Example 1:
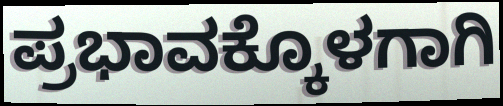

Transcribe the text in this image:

ಪ್ರಭಾವಕ್ಕೊಳಗಾಗಿ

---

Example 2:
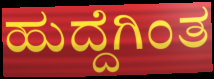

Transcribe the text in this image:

ಹುದ್ದೆಗಿಂತ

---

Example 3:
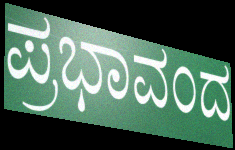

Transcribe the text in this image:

ಪ್ರಭಾವಂದ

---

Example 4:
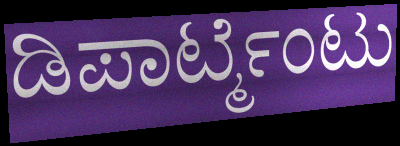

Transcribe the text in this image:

ಡಿಪಾರ್ಟ್ಮೆಂಟು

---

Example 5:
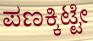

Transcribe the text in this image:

ಪಣಕ್ಕಿಟ್ಟೇ